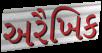
અરૈખિક